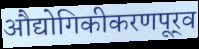
औद्योगिकीकरणपूर्व